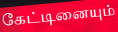
கேட்டினையும்